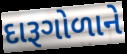
દારૂગોળાને